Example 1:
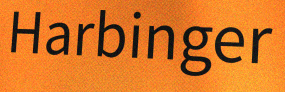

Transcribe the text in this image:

Harbinger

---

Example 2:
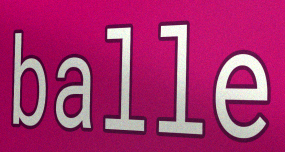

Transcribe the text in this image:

balle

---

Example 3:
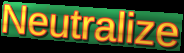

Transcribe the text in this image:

Neutralize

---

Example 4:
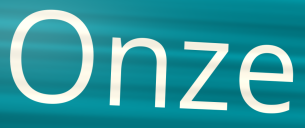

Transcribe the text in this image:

Onze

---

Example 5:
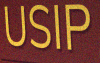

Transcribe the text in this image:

USIP